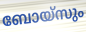
ബോയ്സും